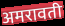
अमरावती